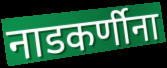
नाडकर्णीना